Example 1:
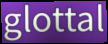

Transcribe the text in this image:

glottal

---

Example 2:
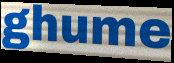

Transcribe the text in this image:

ghume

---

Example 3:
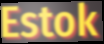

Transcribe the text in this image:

Estok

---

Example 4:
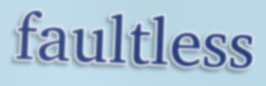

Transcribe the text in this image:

faultless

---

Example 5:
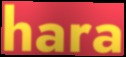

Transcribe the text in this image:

hara